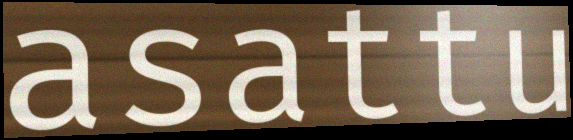
asattu